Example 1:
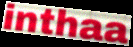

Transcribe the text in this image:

inthaa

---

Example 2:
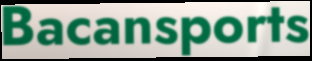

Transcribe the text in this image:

Bacansports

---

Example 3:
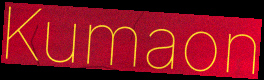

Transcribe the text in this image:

Kumaon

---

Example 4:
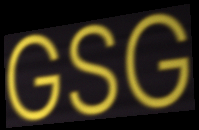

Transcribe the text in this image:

GSG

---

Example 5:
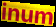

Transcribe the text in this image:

inum